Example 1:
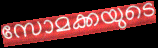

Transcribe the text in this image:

സോമക്കയുടെ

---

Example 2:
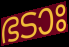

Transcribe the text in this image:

ഭടാഃ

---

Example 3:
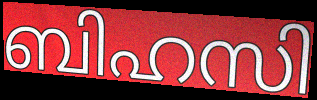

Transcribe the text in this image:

ബിഹസി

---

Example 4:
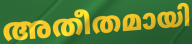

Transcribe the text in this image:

അതീതമായി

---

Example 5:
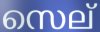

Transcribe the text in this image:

സെല്